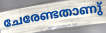
ചേരേണ്ടതാണു്